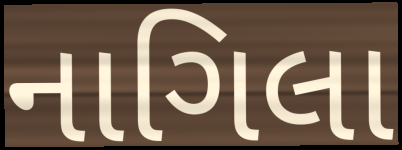
નાગિલા